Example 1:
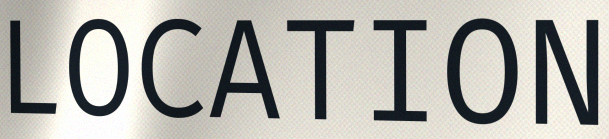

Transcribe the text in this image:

LOCATION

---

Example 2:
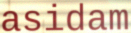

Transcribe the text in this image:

asidam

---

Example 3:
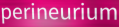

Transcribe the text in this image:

perineurium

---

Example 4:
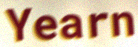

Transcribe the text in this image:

Yearn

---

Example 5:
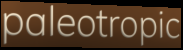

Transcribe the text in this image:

paleotropic